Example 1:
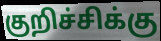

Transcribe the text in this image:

குறிச்சிக்கு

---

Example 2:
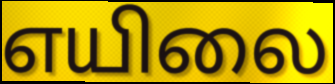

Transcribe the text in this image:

எயிலை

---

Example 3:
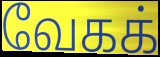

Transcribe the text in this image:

வேகக்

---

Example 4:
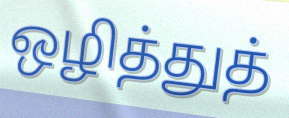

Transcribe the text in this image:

ஒழித்துத்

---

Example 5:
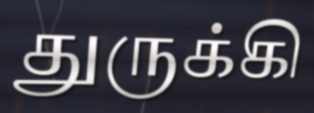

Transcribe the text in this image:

துருக்கி